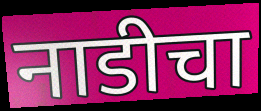
नाडीचा